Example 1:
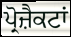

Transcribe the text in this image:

ਪ੍ਰੋਜ਼ੈਕਟਾਂ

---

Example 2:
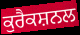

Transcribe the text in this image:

ਕੁਰੈਕਸ਼ਨਲ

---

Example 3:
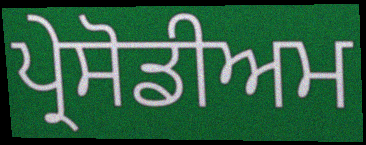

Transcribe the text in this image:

ਪ੍ਰੇਸੋਡੀਅਮ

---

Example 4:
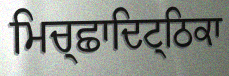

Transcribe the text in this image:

ਮਿਚ੍ਛਾਦਿਟ੍ਠਿਕਾ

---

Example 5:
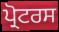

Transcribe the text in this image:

ਪ੍ਰੋਟਰਸ